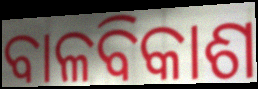
ବାଳବିକାଶ